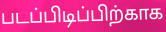
படப்பிடிப்பிற்காக